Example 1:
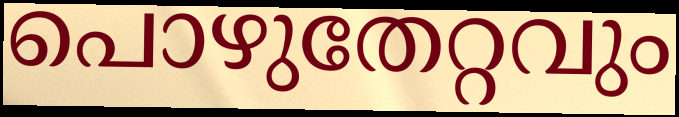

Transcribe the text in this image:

പൊഴുതേറ്റവും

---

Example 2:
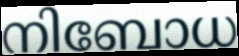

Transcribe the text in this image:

നിബോധ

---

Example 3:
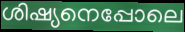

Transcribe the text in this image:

ശിഷ്യനെപ്പോലെ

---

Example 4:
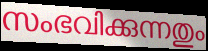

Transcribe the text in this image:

സംഭവിക്കുന്നതും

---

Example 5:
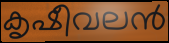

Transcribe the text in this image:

കൃഷീവലൻ